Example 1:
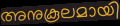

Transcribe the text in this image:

അനുകൂലമായി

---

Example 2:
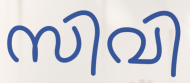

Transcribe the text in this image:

സിവി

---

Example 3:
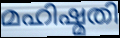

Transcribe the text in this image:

മഹിഷ്മതി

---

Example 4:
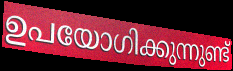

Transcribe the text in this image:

ഉപയോഗിക്കുന്നുണ്ട്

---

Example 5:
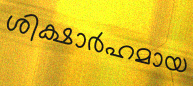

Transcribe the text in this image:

ശിക്ഷാർഹമായ